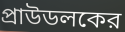
প্রাউডলকের